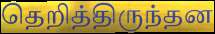
தெறித்திருந்தன